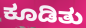
ಕೂಡಿತು